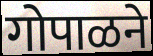
गोपाळने